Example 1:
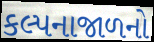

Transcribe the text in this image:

કલ્પનાજાળનો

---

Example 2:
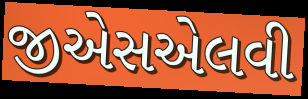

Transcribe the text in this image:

જીએસએલવી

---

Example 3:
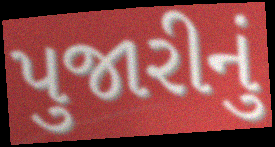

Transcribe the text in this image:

પુજારીનું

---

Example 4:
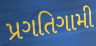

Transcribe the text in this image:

પ્રગતિગામી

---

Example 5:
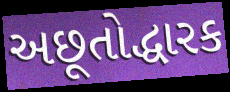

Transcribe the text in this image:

અછૂતોદ્ધારક